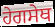
ਹੇਗਸੇਥ